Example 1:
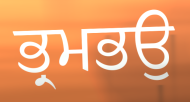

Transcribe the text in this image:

ਭ੍ਰਮਭਉ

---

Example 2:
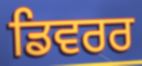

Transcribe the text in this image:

ਡਿਵਰਰ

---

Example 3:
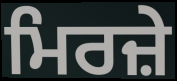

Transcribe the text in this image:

ਮਿਰਜ਼ੇ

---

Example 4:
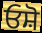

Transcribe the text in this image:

ਓਸ਼ੋ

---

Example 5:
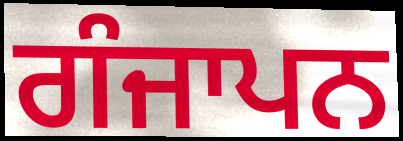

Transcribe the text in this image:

ਗੰਜਾਪਨ